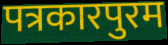
पत्रकारपुरम